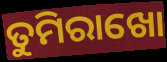
ତୁମିରାଖୋ